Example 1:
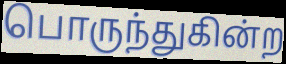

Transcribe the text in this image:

பொருந்துகின்ற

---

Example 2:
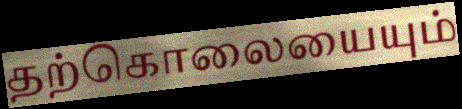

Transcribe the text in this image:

தற்கொலையையும்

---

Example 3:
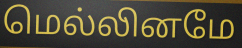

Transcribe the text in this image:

மெல்லினமே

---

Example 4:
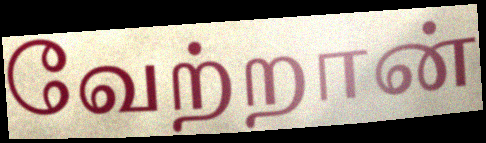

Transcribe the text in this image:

வேற்றான்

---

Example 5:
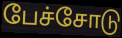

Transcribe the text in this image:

பேச்சோடு